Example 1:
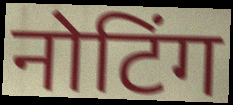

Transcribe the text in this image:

नोटिंग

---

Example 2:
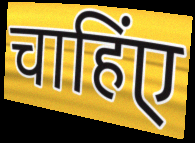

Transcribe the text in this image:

चाहिंए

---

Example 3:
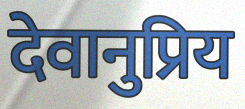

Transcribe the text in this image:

देवानुप्रिय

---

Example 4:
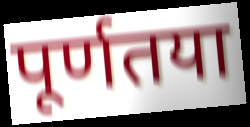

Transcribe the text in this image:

पूर्णतया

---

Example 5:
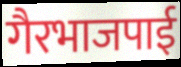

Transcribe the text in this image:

गैरभाजपाई